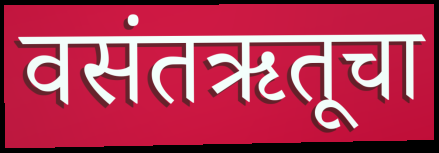
वसंतऋतूचा